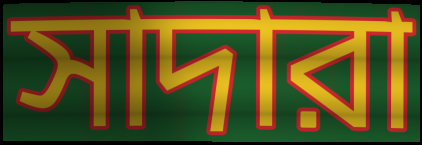
সাদারা